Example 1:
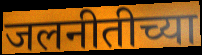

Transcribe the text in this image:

जलनीतीच्या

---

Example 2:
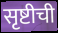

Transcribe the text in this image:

सृष्टीची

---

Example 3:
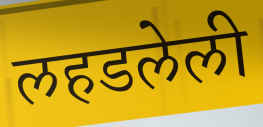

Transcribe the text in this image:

लहडलेली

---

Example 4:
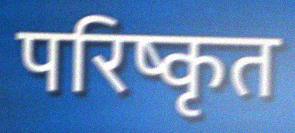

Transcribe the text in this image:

परिष्कृत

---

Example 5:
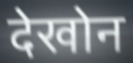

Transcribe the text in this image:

देखोन